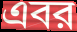
এবর